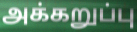
அக்கறுப்பு